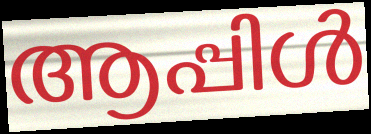
ആപ്പിൾ